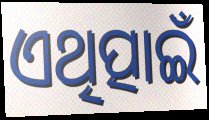
ଏଥିତ୍ପାଇଁ